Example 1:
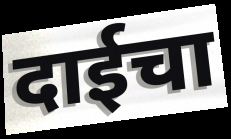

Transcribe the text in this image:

दाईचा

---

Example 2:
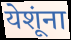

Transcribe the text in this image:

येशूंना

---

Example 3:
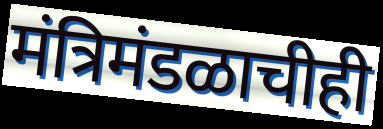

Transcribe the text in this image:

मंत्रिमंडळाचीही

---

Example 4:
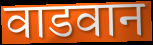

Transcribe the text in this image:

वाडवान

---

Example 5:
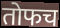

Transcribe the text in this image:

तोफच